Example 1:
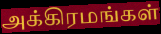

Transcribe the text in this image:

அக்கிரமங்கள்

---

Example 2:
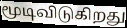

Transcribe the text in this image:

மூடிவிடுகிறது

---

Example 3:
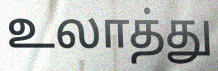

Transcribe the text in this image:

உலாத்து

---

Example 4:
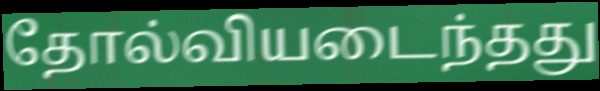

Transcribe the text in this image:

தோல்வியடைந்தது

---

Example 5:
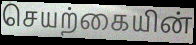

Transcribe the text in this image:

செயற்கையின்